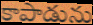
కాపాడును